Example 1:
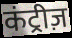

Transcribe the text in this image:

कंट्रीज़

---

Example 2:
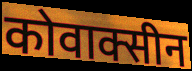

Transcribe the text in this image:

कोवाक्सीन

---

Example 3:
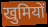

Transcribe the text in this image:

खुमियों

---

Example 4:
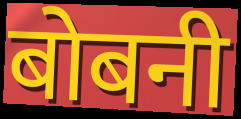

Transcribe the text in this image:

बोबनी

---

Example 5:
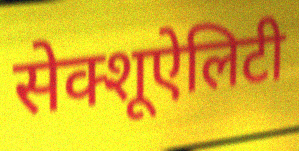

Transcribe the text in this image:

सेक्शूऐलिटी